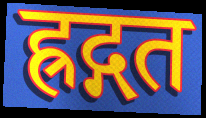
ह्रद्गत